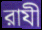
রাযী